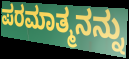
ಪರಮಾತ್ಮನನ್ನು